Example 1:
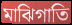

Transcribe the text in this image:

মাঝিগাতি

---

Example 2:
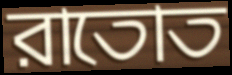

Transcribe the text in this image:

রাতোত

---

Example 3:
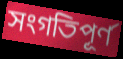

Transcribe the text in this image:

সংগতিপূর্ণ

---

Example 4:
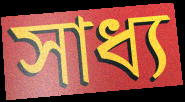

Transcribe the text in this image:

সাধ্য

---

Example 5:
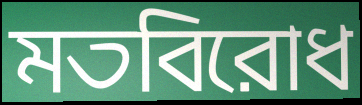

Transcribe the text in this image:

মতবিরোধ